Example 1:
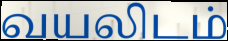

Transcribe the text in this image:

வயலிடம்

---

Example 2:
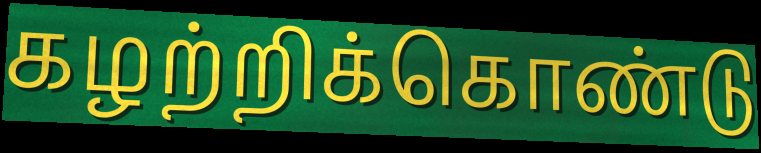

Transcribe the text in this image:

கழற்றிக்கொண்டு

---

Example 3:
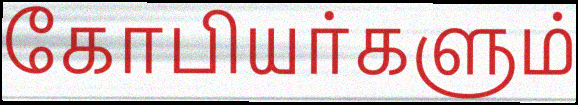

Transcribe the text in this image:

கோபியர்களும்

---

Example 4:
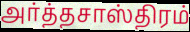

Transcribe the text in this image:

அர்த்தசாஸ்திரம்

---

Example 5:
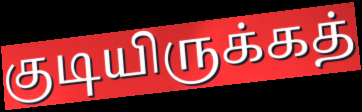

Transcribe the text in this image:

குடியிருக்கத்